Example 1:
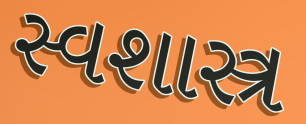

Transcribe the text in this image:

સ્વશાસ્ત્ર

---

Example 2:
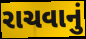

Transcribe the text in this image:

રાચવાનું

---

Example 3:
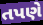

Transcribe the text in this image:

તપણે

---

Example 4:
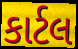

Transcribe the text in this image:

કાર્ટલ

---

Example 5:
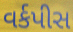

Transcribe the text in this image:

વર્કપીસ